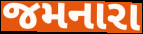
જમનારા